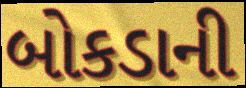
બોકડાની